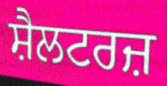
ਸ਼ੈਲਟਰਜ਼